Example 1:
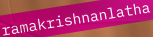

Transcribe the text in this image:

ramakrishnanlatha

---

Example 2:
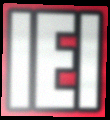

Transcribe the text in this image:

IEI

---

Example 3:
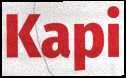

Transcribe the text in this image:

Kapi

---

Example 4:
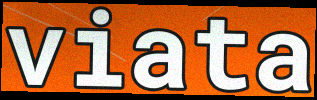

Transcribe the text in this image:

viata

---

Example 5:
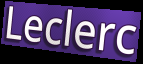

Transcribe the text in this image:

Leclerc